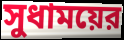
সুধাময়ের